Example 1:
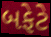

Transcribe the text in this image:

બફેટે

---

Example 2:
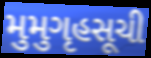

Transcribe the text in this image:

મુમુગૃહસૂચી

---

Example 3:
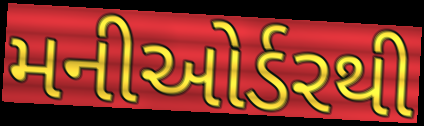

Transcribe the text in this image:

મનીઓર્ડરથી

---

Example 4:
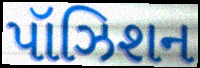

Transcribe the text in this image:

પૉઝિશન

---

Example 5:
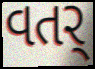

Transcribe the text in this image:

વતર્